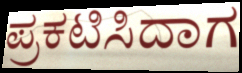
ಪ್ರಕಟಿಸಿದಾಗ